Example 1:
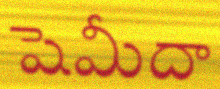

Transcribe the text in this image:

షెమీదా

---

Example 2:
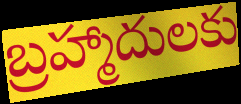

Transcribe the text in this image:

బ్రహ్మాదులకు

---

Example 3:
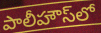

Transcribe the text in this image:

పాలీహౌస్‌లో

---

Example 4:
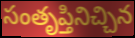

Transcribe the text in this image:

సంతృప్తినిచ్చిన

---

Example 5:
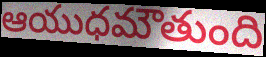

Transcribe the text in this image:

ఆయుధమౌతుంది